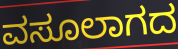
ವಸೂಲಾಗದ